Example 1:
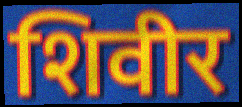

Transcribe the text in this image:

शिवीर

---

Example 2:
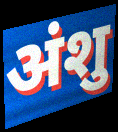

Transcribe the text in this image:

अंशु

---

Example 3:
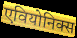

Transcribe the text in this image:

एवियोनिक्स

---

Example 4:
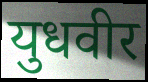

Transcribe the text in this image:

युधवीर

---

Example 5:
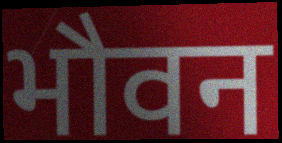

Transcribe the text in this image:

भौवन